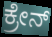
ಕ್ರೇನ್